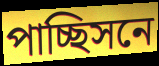
পাচ্ছিসনে